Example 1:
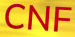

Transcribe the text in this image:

CNF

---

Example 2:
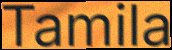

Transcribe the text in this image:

Tamila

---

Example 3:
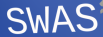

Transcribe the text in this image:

SWAS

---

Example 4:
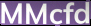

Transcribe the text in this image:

MMcfd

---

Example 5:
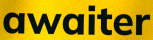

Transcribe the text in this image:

awaiter